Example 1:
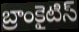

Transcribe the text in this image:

బ్రాంకైటిస్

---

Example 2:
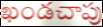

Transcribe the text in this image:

ఖండచాపు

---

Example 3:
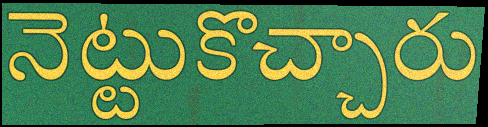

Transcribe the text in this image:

నెట్టుకొచ్చారు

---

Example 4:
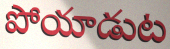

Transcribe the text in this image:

పోయాడుట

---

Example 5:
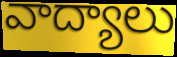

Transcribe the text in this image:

వాద్యాలు